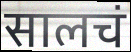
सालचं